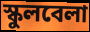
স্কুলবেলা